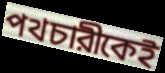
পথচারীকেই